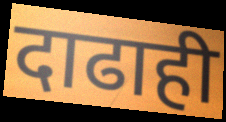
दाढाही